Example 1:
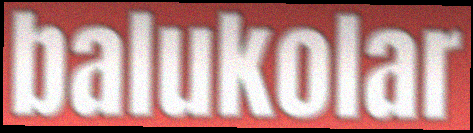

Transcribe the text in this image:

balukolar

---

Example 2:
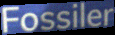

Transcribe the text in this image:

Fossiler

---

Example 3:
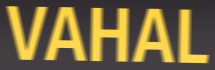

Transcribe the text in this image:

VAHAL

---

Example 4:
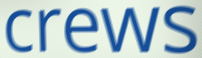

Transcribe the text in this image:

crews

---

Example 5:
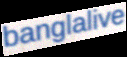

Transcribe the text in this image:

banglalive